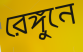
রেঙ্গুনে